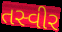
તસ્વીર